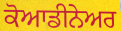
ਕੋਆਡੀਨੇਅਰ